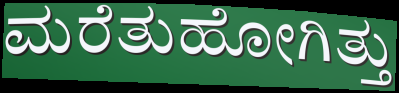
ಮರೆತುಹೋಗಿತ್ತು